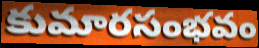
కుమారసంభవం